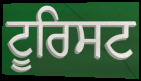
ਟੂਰਿਸਟ